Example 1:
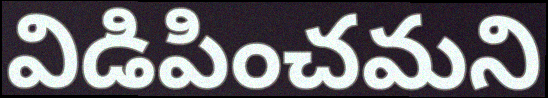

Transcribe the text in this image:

విడిపించమని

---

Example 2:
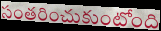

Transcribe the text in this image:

సంతరించుకుంటోంది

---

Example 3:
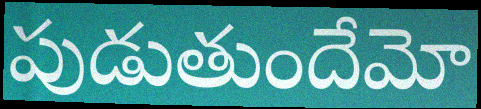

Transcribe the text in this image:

పుడుతుందేమో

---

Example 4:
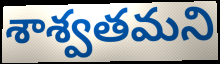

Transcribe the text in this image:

శాశ్వతమని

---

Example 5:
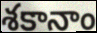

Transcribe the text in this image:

శకానాం